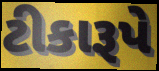
ટીકારૂપે